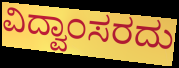
ವಿದ್ವಾಂಸರದು